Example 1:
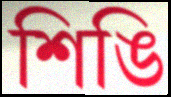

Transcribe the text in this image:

শিঙি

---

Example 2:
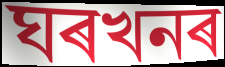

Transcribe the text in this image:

ঘৰখনৰ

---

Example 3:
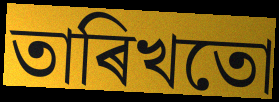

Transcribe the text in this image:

তাৰিখতো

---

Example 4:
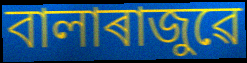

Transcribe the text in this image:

বালাৰাজুৱে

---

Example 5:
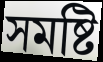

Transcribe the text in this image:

সমষ্টি